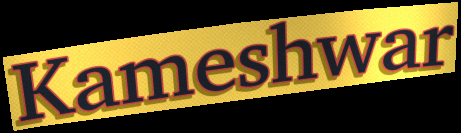
Kameshwar